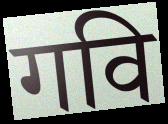
गवि